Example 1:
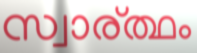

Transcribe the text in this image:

സ്വാര്ത്ഥം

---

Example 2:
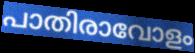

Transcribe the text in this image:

പാതിരാവോളം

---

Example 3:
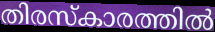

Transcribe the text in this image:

തിരസ്കാരത്തിൽ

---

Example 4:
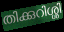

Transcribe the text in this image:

തിക്കുറിശ്ശി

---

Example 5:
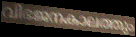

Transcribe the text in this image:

വിഭജനകാലത്തും